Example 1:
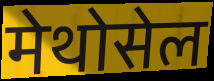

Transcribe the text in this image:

मेथोसेल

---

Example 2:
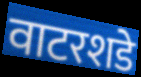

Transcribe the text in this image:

वाटरशडे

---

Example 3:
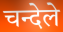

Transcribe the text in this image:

चन्देले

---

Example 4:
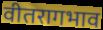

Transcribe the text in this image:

वीतरागभाव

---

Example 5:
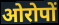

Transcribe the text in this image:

ओरोपों